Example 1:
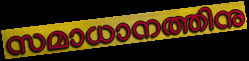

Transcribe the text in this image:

സമാധാനത്തിനു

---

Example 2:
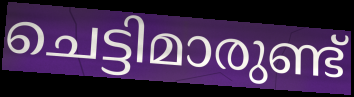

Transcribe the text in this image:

ചെട്ടിമാരുണ്ട്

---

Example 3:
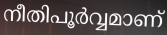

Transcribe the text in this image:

നീതിപൂർവ്വമാണ്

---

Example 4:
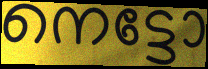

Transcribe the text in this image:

നെട്ടോ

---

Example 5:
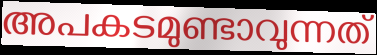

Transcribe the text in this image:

അപകടമുണ്ടാവുന്നത്